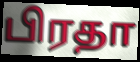
பிரதா